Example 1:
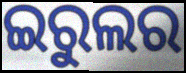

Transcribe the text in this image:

ଇରୁଲର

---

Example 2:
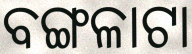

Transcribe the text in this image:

ବଙ୍ଗଳାଟା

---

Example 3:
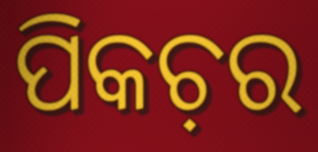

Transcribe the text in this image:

ପିକଚ଼ର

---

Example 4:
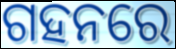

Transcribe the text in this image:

ଗହନରେ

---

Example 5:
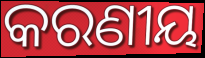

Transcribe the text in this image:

କରଣୀୟ